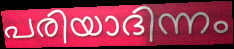
പരിയാദിന്നം